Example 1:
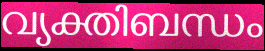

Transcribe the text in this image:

വ്യക്തിബന്ധം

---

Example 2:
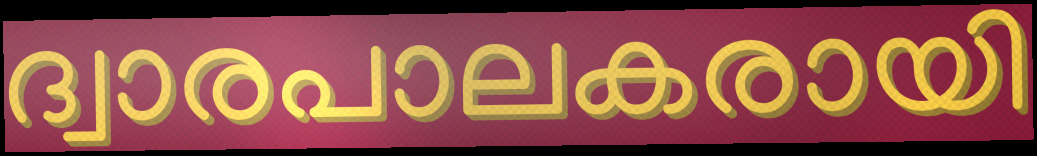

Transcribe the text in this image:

ദ്വാരപാലകരായി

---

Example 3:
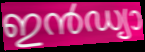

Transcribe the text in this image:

ഇൻഡ്യാ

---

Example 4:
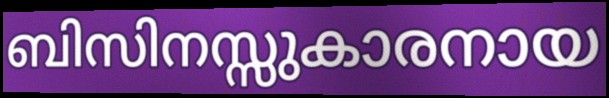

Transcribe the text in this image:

ബിസിനസ്സുകാരനായ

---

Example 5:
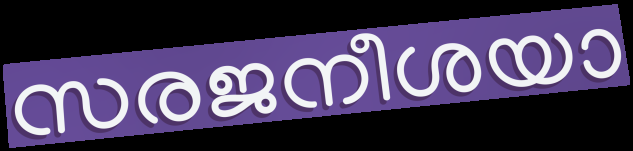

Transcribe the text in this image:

സരജനീശയാ